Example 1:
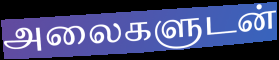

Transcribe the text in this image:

அலைகளுடன்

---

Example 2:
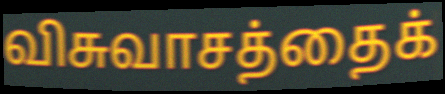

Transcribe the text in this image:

விசுவாசத்தைக்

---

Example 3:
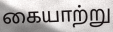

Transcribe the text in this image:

கையாற்று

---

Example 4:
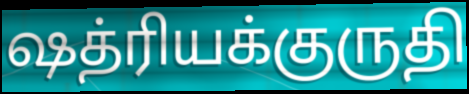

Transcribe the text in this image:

ஷத்ரியக்குருதி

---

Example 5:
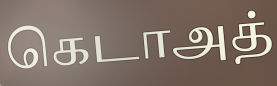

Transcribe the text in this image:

கெடாஅத்